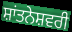
ਸ਼ਾਂਤਨੇਸ਼ਵਰੀ